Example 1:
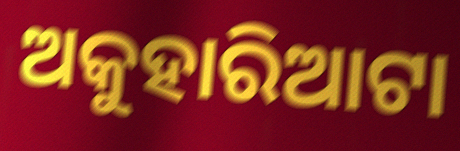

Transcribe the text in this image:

ଅକୁହାରିଆଟା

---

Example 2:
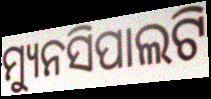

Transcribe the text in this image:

ମ୍ୟୁନସିପାଲଟି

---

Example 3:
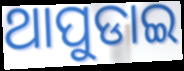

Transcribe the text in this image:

ଥାପୁଡାଇ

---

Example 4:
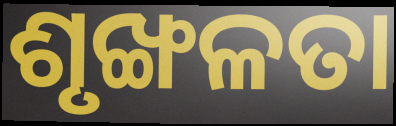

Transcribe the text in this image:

ଶୃଙ୍ଖଳତା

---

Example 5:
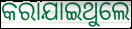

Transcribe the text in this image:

କରାଯାଇଥୁଲେ